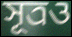
সূত্রও